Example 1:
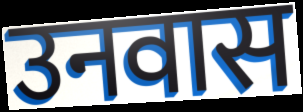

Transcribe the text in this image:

उनवास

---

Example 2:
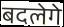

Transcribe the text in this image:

बदलेगे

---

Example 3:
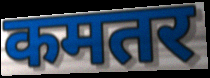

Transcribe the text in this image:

कमतर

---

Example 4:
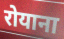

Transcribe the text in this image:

रोयाना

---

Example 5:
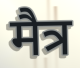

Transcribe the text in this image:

मैत्र